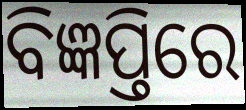
ବିଜ୍ଞପ୍ତିରେ